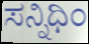
ಸನ್ನಿಧಿಂ